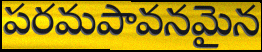
పరమపావనమైన